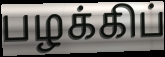
பழக்கிப்